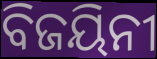
ବିଜୟିନୀ